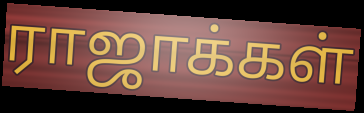
ராஜாக்கள்